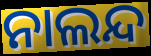
ନାଲନ୍ଦ